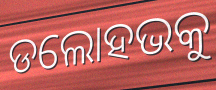
ଡଲୋହଭକୁ